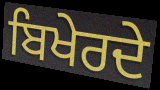
ਬਿਖੇਰਦੇ